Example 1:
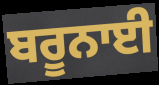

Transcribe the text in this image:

ਬਰੂਨਾਈ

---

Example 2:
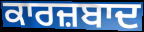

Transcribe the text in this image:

ਕਾਰਜ਼ਬਾਦ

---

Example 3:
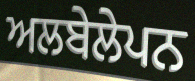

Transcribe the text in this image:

ਅਲਬੇਲੇਪਨ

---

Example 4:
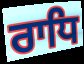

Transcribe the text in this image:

ਰਾਧਿ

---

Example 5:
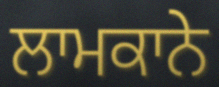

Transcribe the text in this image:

ਲਾਮਕਾਨੇ